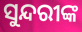
ସୁନ୍ଦରୀଙ୍କ